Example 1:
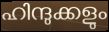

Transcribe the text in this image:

ഹിന്ദുക്കളും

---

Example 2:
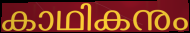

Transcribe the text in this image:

കാഥികനും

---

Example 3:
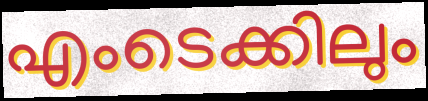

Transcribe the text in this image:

എംടെക്കിലും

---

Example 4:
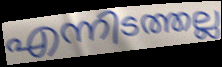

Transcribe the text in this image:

എന്നിടത്തല്ല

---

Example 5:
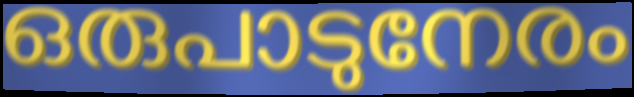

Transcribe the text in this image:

ഒരുപാടുനേരം